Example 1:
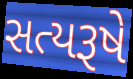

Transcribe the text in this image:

સત્યરૂષે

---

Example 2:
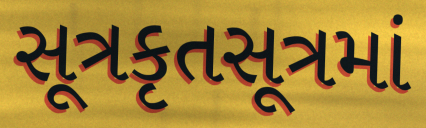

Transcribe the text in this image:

સૂત્રકૃતસૂત્રમાં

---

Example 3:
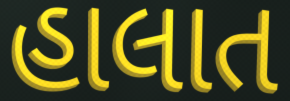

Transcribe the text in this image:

હાલાત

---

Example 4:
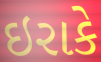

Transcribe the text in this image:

ઇરાકે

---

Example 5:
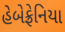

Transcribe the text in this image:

હેબેફ્રેનિયા